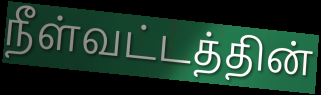
நீள்வட்டத்தின்